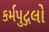
કર્મપુદ્ગલો